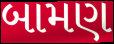
બામણ